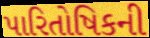
પારિતોષિકની